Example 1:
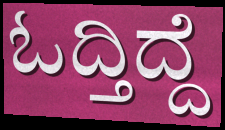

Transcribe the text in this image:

ಓದ್ತಿದ್ದೆ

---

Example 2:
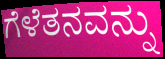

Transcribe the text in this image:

ಗೆಳೆತನವನ್ನು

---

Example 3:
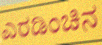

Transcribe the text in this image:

ಎರಡಿಂಚಿನ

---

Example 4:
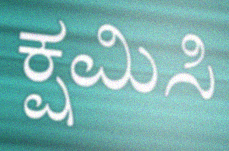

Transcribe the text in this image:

ಕ್ಷಮಿಸಿ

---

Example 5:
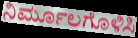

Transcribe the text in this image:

ನಿರ್ಮೂಲಗೊಳಿಸಿ